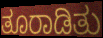
ತೂರಾಡಿತು